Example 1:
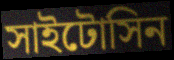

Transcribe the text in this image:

সাইটোসিন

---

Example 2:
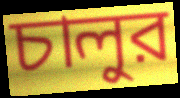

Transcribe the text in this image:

চালুর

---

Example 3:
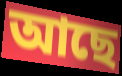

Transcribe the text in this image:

আছে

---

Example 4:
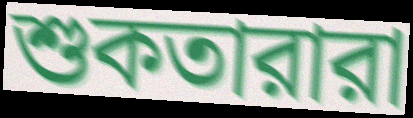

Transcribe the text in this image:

শুকতারারা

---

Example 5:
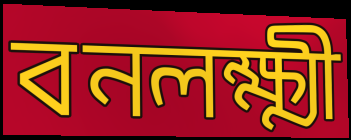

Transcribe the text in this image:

বনলক্ষ্মী